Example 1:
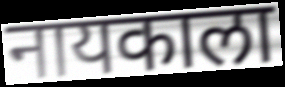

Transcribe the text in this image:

नायकाला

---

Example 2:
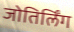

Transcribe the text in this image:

जोतिर्लिंग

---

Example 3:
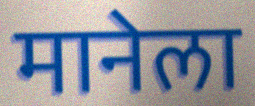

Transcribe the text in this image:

मानेला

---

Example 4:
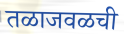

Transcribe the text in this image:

तळाजवळची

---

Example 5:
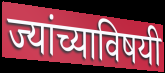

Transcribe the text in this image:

ज्यांच्याविषयी